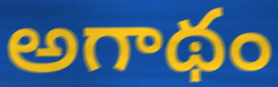
అగాథం